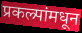
प्रकल्पांमधून